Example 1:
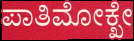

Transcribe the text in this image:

ಪಾತಿಮೋಕ್ಖೇ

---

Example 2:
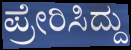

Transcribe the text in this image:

ಪ್ರೇರಿಸಿದ್ದು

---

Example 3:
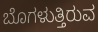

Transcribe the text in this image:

ಬೊಗಳುತ್ತಿರುವ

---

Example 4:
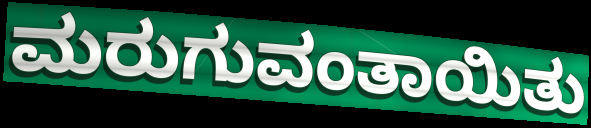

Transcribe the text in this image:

ಮರುಗುವಂತಾಯಿತು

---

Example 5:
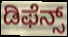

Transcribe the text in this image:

ಡಿಫೆನ್ಸ್